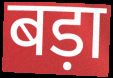
बड़ा